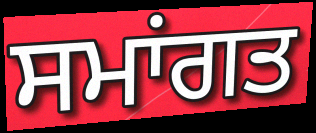
ਸਮਾਂਗਤ